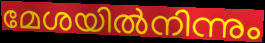
മേശയിൽനിന്നും